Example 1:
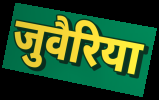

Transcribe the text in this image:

जुवैरिया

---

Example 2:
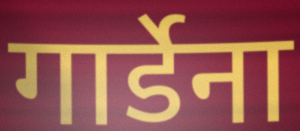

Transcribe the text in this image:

गार्डेना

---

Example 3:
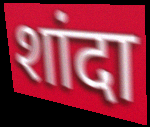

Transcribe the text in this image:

शांदा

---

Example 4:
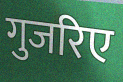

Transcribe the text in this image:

गुजरिए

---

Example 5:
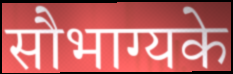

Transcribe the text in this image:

सौभाग्यके